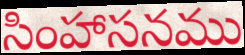
సింహాసనము